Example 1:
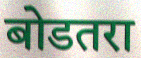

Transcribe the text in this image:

बोडतरा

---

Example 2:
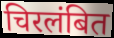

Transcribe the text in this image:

चिरलंबित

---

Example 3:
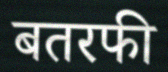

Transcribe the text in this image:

बतरफी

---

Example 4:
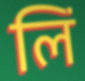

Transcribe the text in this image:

लिं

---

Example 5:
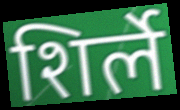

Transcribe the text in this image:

शिर्ले